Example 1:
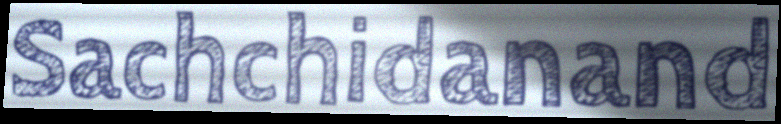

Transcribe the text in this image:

Sachchidanand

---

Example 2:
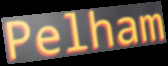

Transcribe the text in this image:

Pelham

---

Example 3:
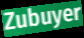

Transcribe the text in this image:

Zubuyer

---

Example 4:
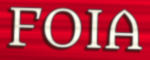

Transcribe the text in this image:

FOIA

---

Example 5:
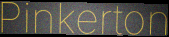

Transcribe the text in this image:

Pinkerton